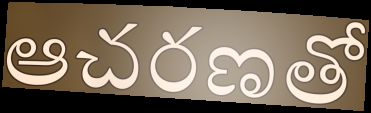
ఆచరణతో